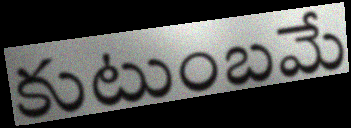
కుటుంబమే